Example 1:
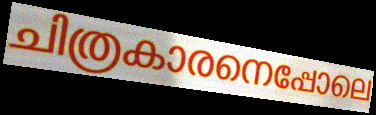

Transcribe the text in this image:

ചിത്രകാരനെപ്പോലെ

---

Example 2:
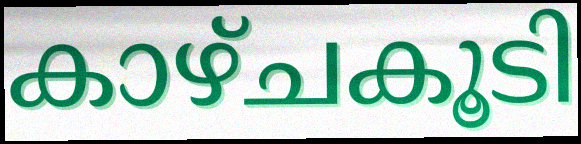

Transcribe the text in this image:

കാഴ്ചകൂടി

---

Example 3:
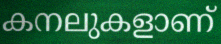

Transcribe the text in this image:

കനലുകളാണ്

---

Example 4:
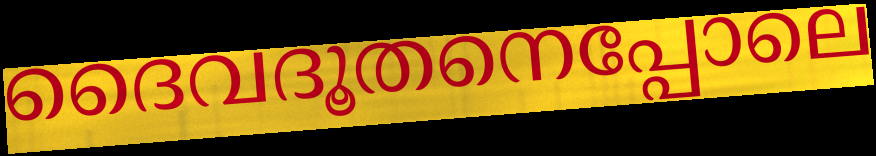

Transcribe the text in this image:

ദൈവദൂതനെപ്പോലെ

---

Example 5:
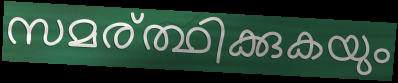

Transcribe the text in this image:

സമര്ത്ഥിക്കുകയും